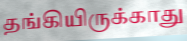
தங்கியிருக்காது